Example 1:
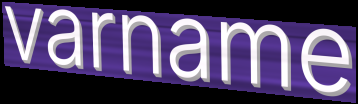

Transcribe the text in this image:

varname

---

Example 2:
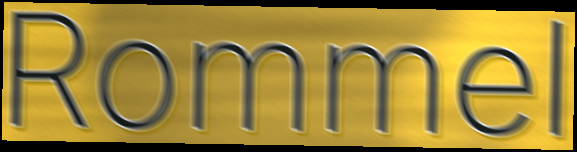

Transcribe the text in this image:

Rommel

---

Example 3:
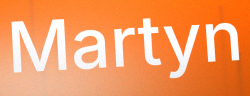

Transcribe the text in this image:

Martyn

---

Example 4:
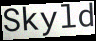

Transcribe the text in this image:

Skyld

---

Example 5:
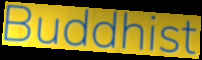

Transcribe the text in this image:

Buddhist